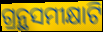
ଗ୍ରନ୍ଥସମୀକ୍ଷାଟି